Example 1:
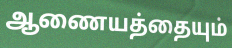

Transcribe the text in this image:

ஆணையத்தையும்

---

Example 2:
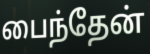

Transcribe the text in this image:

பைந்தேன்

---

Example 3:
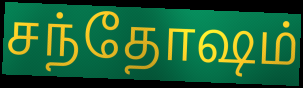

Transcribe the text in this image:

சந்தோஷம்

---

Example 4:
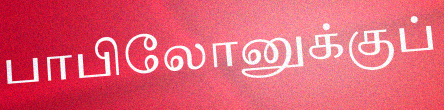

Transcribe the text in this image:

பாபிலோனுக்குப்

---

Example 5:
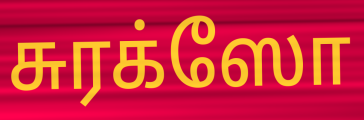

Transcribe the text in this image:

சுரக்ஸோ